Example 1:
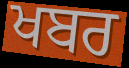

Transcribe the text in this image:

ਖਬਰ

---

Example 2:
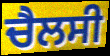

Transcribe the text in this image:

ਚੈਲਸੀ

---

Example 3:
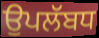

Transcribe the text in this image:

ਉਪਲੱਬਧ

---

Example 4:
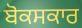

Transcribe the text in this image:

ਬੋਕਸਕਾਰ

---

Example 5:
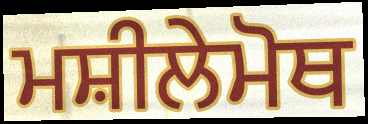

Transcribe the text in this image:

ਮਸ਼ੀਲੇਮੋਥ